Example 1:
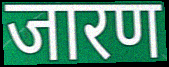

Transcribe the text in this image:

जारण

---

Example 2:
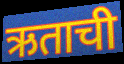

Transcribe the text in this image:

ऋताची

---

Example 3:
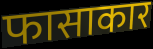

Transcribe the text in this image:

फासाकार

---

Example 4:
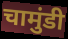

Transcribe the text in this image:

चामुंडी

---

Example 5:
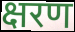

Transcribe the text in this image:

क्षरण